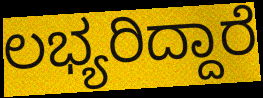
ಲಭ್ಯರಿದ್ದಾರೆ